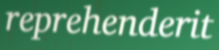
reprehenderit